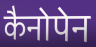
कैनोपेन